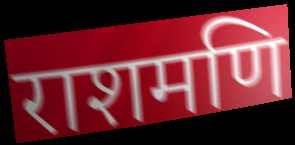
राशमणि